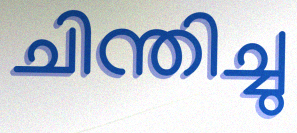
ചിന്തിച്ചു